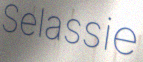
Selassie